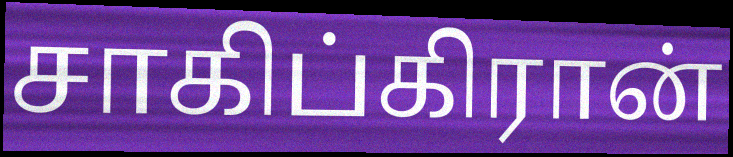
சாகிப்கிரான்